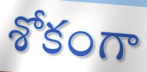
శోకంగా